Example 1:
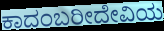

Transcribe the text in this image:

ಕಾದಂಬರೀದೇವಿಯ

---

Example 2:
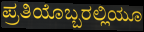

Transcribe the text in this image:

ಪ್ರತಿಯೊಬ್ಬರಲ್ಲಿಯೂ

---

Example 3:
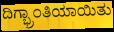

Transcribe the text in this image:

ದಿಗ್ಭ್ರಾಂತಿಯಾಯಿತು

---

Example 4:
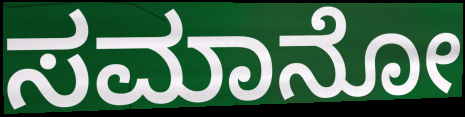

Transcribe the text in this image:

ಸಮಾನೋ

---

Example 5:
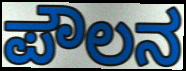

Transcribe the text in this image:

ಪೌಲನ